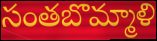
సంతబొమ్మాళి